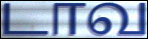
டாவ